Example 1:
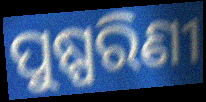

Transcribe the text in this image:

ପୁଷ୍ପରିଣୀ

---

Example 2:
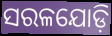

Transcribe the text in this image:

ସରଳଯୋଡ଼ି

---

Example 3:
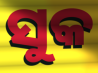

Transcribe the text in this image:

ସୁକ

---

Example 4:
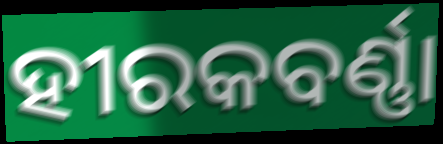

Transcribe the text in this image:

ହୀରକବର୍ଣ୍ଣା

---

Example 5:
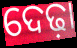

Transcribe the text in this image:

ଦେଢ଼ା